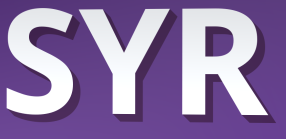
SYR